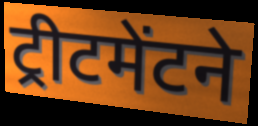
ट्रीटमेंटने